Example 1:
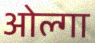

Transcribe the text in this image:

ओल्गा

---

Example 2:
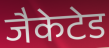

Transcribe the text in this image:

जैकेटेड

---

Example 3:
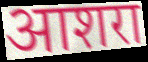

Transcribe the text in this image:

आशरा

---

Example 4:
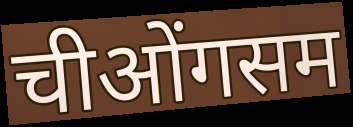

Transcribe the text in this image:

चीओंगसम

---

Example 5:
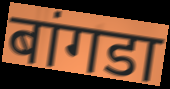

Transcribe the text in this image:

बांगडा